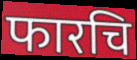
फारचि